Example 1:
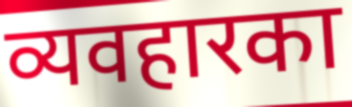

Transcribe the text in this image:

व्यवहारका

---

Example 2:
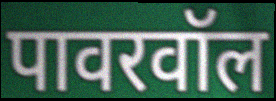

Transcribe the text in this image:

पावरवॉल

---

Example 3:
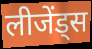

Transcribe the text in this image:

लीजेंड्स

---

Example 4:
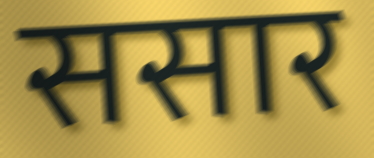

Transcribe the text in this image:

ससार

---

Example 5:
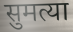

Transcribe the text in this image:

सुमत्या